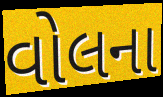
વોલના